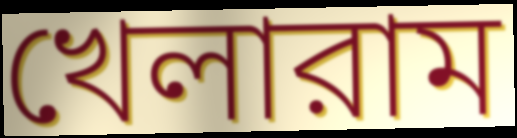
খেলারাম